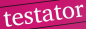
testator